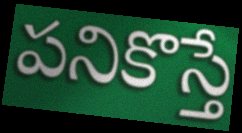
పనికొస్తే